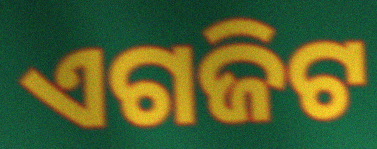
ଏଗଜିଟ